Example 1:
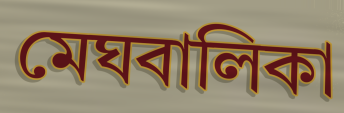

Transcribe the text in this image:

মেঘবালিকা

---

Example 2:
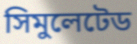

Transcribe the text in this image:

সিমুলেটেড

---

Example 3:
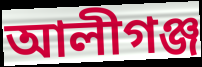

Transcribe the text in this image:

আলীগঞ্জ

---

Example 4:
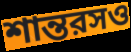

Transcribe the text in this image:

শান্তরসও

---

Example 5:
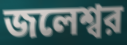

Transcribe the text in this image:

জলেশ্বর